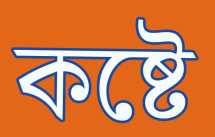
কষ্টে